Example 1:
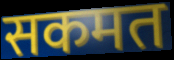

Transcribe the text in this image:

सकमत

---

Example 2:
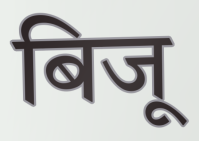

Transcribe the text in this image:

बिजू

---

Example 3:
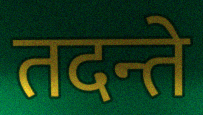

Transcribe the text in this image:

तदन्ते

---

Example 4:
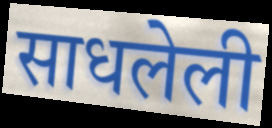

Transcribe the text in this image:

साधलेली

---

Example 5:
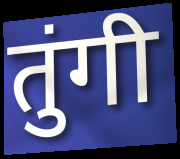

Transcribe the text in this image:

तुंगी